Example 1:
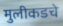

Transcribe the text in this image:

मुलीकडचे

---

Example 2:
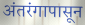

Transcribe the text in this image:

अंतरंगापासून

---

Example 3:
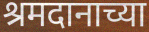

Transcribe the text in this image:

श्रमदानाच्या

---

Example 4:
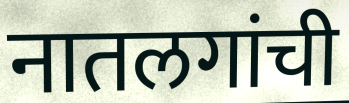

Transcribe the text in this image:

नातलगांची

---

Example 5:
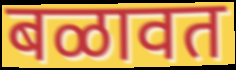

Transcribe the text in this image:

बळावत